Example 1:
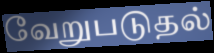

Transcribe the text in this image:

வேறுபடுதல்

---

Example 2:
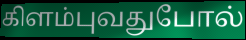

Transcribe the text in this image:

கிளம்புவதுபோல்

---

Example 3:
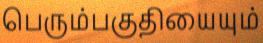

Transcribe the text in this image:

பெரும்பகுதியையும்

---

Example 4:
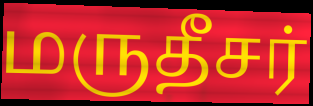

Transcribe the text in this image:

மருதீசர்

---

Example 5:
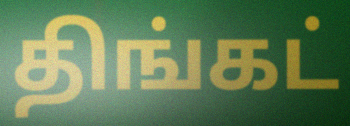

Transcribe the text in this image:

திங்கட்